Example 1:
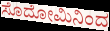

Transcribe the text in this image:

ಸೊದೋಮಿನಿಂದ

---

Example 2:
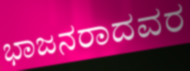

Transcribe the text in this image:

ಭಾಜನರಾದವರ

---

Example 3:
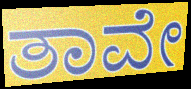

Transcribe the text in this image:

ತಾವೇ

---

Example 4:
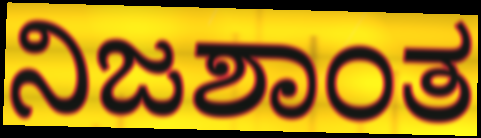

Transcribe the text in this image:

ನಿಜಶಾಂತ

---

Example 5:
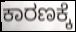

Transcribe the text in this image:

ಕಾರಣಕ್ಕೆ